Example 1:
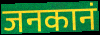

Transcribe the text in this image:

जनकानं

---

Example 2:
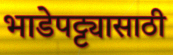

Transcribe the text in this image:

भाडेपट्ट्यासाठी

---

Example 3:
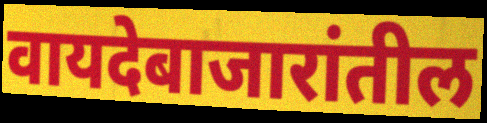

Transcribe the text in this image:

वायदेबाजारांतील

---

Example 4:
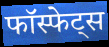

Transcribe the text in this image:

फॉस्फेट्स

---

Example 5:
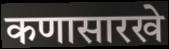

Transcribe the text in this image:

कणासारखे